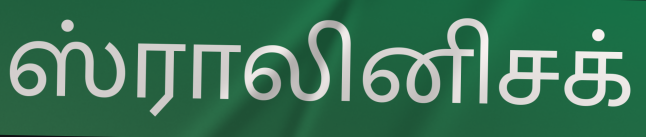
ஸ்ராலினிசக்